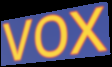
vox